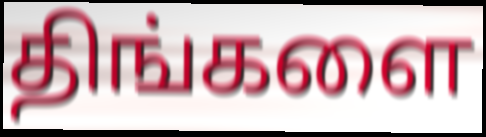
திங்களை